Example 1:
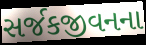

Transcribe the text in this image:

સર્જકજીવનના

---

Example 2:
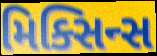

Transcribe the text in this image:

મિક્સિન્સ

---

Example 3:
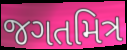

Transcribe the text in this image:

જગતમિત્ર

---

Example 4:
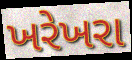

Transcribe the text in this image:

ખરેખરા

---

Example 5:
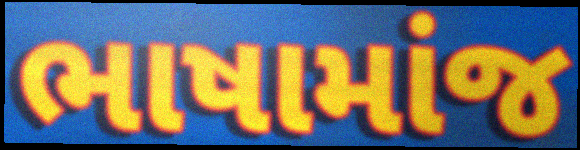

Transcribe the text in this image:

ભાષામાંજ